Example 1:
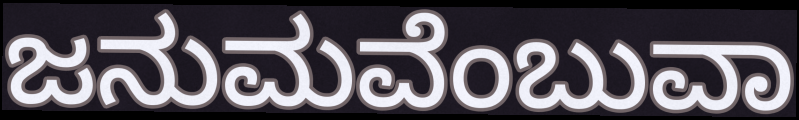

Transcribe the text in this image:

ಜನುಮವೆಂಬುವಾ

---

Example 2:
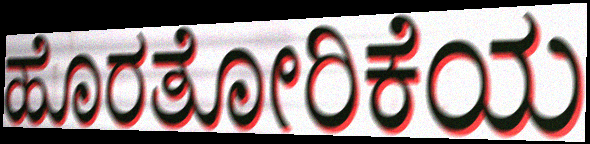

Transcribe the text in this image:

ಹೊರತೋರಿಕೆಯ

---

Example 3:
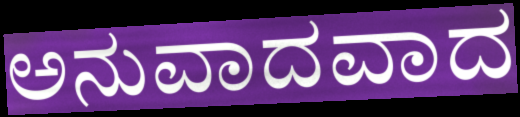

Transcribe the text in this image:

ಅನುವಾದವಾದ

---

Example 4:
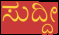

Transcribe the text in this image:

ಸುದ್ದೀ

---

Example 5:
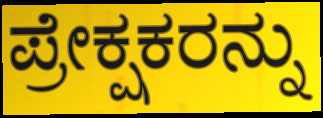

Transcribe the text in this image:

ಪ್ರೇಕ್ಷಕರನ್ನು